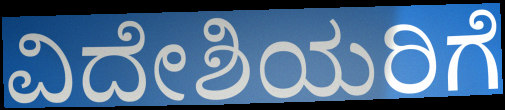
ವಿದೇಶಿಯರಿಗೆ